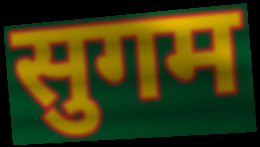
सुगम